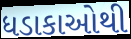
ધડાકાઓથી